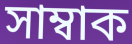
সাম্বাক